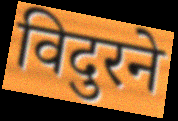
विदुरने